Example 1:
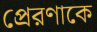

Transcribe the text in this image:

প্রেরণাকে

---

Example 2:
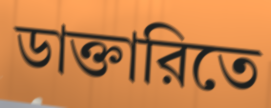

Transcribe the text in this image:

ডাক্তারিতে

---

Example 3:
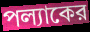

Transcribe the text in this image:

পল্যাকের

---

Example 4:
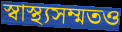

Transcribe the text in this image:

স্বাস্থ্যসম্মতও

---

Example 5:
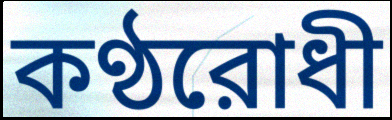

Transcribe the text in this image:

কণ্ঠরোধী